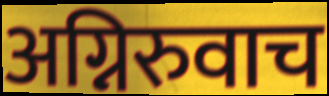
अग्निरुवाच